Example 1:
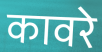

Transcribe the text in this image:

कावरे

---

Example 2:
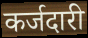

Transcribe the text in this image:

कर्जदारी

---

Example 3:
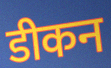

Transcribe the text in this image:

डीकन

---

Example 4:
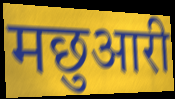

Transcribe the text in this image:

मछुआरी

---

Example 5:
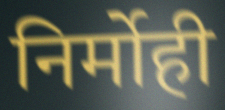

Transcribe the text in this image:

निर्मोही